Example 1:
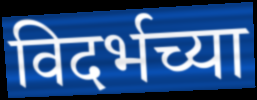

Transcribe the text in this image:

विदर्भच्या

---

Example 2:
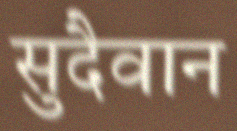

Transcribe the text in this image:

सुदैवान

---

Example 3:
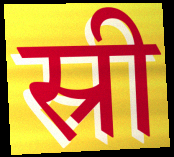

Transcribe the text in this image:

स्री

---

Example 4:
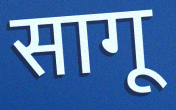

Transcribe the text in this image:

सागू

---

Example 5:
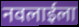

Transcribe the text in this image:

नवलाईला